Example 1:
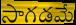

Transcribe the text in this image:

సాగడమే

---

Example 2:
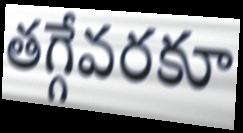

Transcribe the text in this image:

తగ్గేవరకూ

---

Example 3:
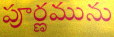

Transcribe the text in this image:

పూర్ణమును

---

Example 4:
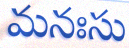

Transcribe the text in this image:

మనఃసు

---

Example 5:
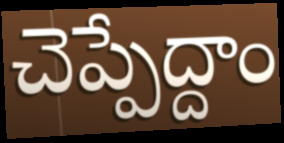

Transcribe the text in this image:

చెప్పేద్దాం